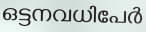
ഒട്ടനവധിപേർ